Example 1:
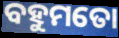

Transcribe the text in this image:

ବହୁମତୋ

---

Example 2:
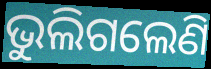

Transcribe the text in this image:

ଭୁଲିଗଲେଣି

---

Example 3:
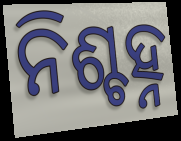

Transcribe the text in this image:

ନିଶ୍ଚହ୍ନ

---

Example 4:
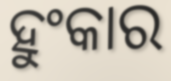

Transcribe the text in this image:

ହୁଂକାର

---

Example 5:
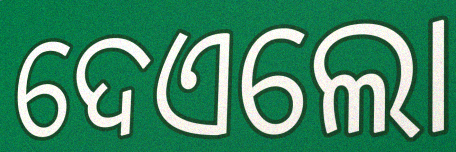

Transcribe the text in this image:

ଦେଏଲୋ